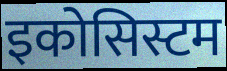
इकोसिस्टम